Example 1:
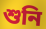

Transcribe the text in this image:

শুনি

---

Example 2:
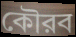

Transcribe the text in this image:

কৌরব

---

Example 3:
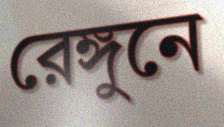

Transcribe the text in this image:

রেঙ্গুনে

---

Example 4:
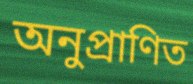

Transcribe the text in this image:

অনুপ্রাণিত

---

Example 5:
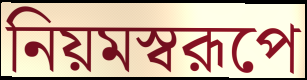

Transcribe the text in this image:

নিয়মস্বরূপে